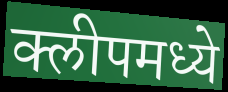
क्लीपमध्ये